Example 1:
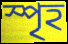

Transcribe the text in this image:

স্পৃহ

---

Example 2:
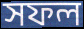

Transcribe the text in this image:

সফল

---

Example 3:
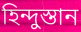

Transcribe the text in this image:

হিন্দুস্তান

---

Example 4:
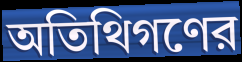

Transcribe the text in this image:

অতিথিগণের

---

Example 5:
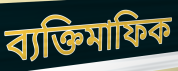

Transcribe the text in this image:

ব্যক্তিমাফিক